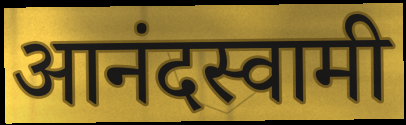
आनंदस्वामी